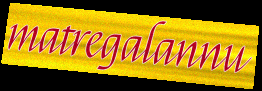
matregalannu